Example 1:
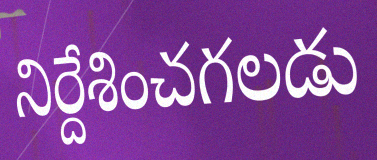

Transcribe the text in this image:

నిర్దేశించగలడు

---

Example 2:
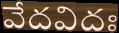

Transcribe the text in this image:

వేదవిదః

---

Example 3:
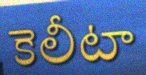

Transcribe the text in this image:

కెలీటా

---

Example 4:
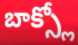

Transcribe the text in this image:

బాక్స్లో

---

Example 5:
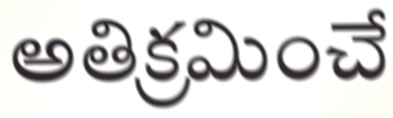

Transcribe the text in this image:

అతిక్రమించే